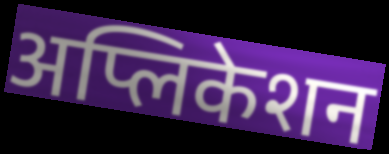
अप्लिकेशन